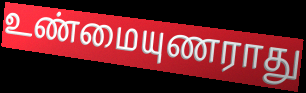
உண்மையுணராது